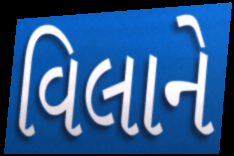
વિલાને